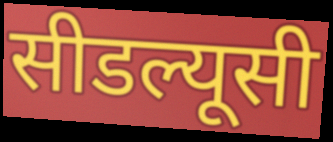
सीडल्यूसी